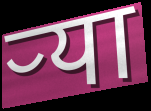
ऱ्या